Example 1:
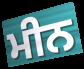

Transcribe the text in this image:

ਮੀਨ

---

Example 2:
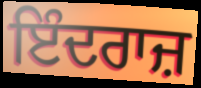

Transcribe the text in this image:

ਇੰਦਰਾਜ਼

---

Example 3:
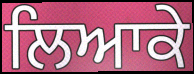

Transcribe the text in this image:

ਲਿਆਕੇ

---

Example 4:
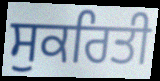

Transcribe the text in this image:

ਸੁਕਰਿਤੀ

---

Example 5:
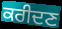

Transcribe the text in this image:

ਕਰੀਦਣ